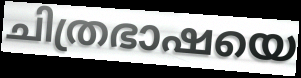
ചിത്രഭാഷയെ